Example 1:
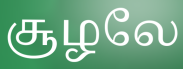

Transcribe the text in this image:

சூழலே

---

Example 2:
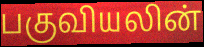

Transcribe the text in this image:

பகுவியலின்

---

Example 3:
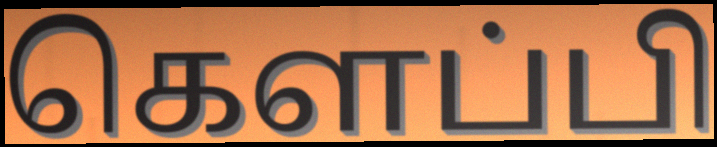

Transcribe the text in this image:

கெளப்பி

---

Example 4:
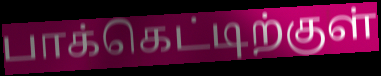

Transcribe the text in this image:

பாக்கெட்டிற்குள்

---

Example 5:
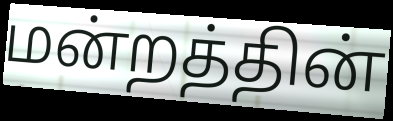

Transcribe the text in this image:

மன்றத்தின்